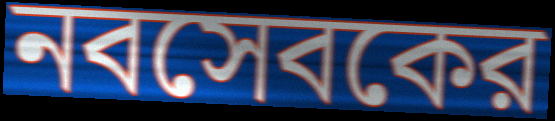
নবসেবকের